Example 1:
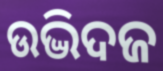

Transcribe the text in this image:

ଉଦ୍ଭିଦଜ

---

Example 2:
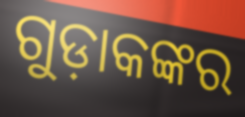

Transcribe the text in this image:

ଗୁଡ଼ାକଙ୍କର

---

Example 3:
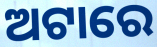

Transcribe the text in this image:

ଅଟାରେ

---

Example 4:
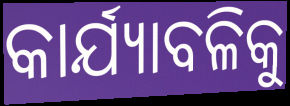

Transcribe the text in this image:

କାର୍ଯ୍ୟାବଳିକୁ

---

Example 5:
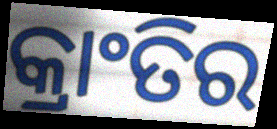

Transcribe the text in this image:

କ୍ରାଂତିର